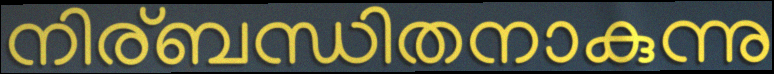
നിര്ബന്ധിതനാകുന്നു